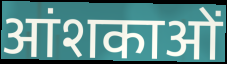
आंशकाओं